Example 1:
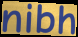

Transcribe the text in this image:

nibh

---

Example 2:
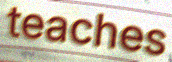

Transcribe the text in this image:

teaches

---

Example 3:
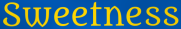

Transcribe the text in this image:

Sweetness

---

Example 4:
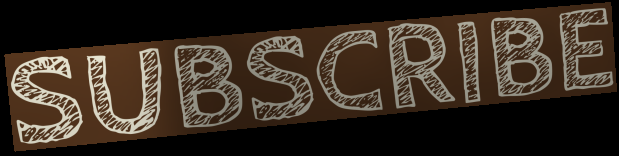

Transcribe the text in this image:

SUBSCRIBE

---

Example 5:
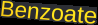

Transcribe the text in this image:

Benzoate